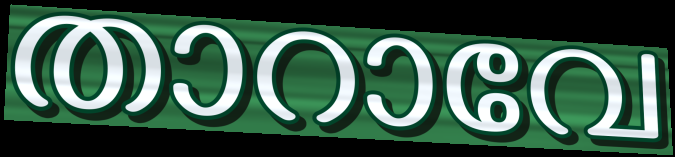
താറാവേ